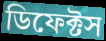
ডিফেক্টস